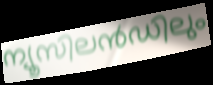
ന്യൂസിലൻഡിലും